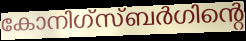
കോനിഗ്സ്ബർഗിന്റെ